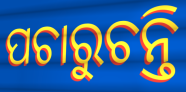
ପଚାରୁଚନ୍ତି